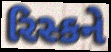
રિસ્કને